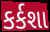
કર્કશા